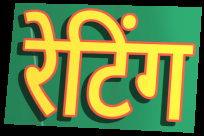
रेटिंग